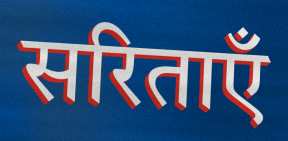
सरिताएँ